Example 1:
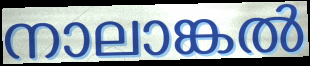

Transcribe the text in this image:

നാലാങ്കൽ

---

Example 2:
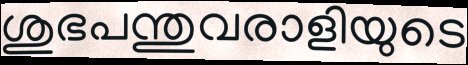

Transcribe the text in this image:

ശുഭപന്തുവരാളിയുടെ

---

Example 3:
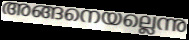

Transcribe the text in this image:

അങ്ങനെയല്ലെന്നു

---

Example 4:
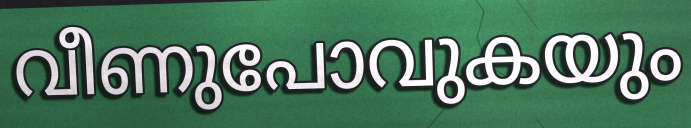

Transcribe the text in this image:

വീണുപോവുകയും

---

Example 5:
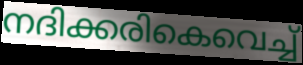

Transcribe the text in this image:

നദിക്കരികെവെച്ച്